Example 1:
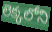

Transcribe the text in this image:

లెక్కలోని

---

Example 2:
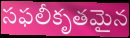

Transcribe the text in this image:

సఫలీకృతమైన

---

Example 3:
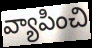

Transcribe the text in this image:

వ్యాపించి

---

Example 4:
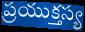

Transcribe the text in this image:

ప్రయుక్తస్య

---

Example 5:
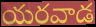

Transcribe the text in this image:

యరవాడ